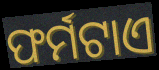
ଫର୍ମଟାଏ